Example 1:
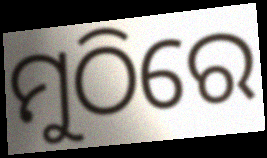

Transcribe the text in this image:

ମୁଠିରେ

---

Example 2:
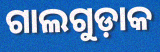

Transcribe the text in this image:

ଗାଲଗୁଡ଼ାକ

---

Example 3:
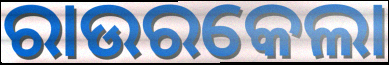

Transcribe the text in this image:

ରାଉରକେଲା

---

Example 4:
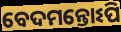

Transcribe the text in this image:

ବେଦମନ୍ତୋଽପି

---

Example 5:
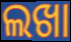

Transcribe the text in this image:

ଲଖା